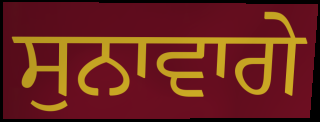
ਸੁਨਾਵਾਗੇ